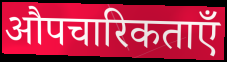
औपचारिकताएँ